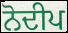
ਨੋਦੀਪ